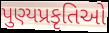
પુણ્યપ્રકૃતિઓ